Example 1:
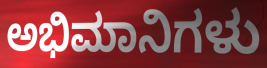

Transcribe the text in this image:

ಅಭಿಮಾನಿಗಳು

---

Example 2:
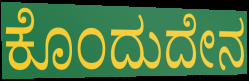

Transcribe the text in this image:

ಕೊಂದುದೇನ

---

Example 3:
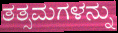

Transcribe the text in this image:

ತತ್ಸಮಗಳನ್ನು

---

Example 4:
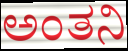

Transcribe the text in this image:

ಅಂತನಿ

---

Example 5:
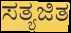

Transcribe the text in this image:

ಸತ್ಯಜಿತ